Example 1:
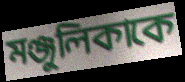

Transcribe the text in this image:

মঞ্জুলিকাকে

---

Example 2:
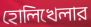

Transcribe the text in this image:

হোলিখেলার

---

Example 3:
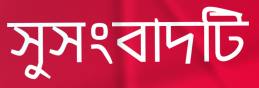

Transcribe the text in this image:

সুসংবাদটি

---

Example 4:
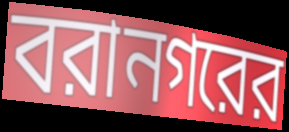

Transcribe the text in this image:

বরানগরের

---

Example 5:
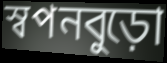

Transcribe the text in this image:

স্বপনবুড়ো